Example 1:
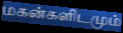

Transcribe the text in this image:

மகன்களிடமும்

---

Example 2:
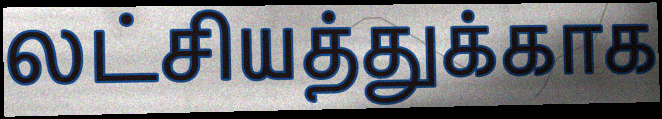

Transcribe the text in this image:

லட்சியத்துக்காக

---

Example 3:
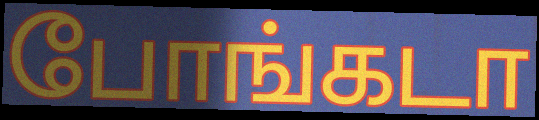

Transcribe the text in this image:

போங்கடா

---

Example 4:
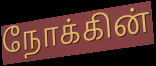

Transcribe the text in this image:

நோக்கின்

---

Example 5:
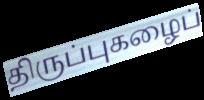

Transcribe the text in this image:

திருப்புகழைப்